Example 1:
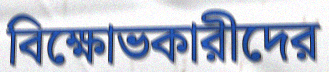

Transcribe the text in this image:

বিক্ষোভকারীদের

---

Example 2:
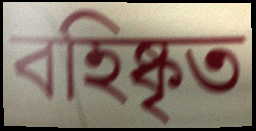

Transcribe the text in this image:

বহিষ্কৃত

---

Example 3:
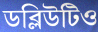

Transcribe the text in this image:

ডব্লিউটিও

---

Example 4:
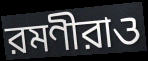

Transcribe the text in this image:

রমণীরাও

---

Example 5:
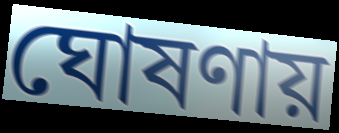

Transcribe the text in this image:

ঘোষণায়